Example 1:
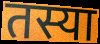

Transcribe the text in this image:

तस्या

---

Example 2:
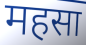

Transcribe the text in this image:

महसा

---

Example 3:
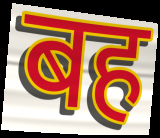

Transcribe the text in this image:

बह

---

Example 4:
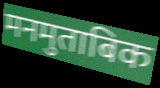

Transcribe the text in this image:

मनमुताबिक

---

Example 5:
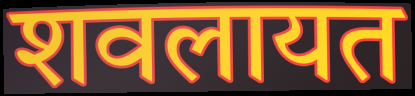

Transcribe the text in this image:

शवलायत